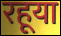
रहूया